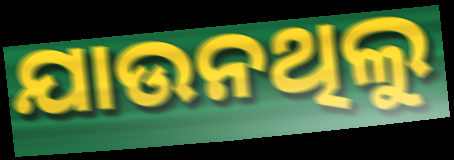
ଯାଉନଥିଲୁ